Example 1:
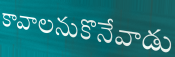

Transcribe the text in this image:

కావాలనుకొనేవాడు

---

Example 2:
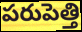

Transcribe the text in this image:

పరుపెత్తి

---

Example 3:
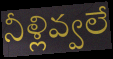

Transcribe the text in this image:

నీళ్లివ్వలే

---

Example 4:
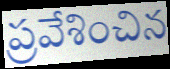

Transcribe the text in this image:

ప్రవేశించిన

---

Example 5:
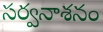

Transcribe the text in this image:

సర్వనాశనం